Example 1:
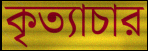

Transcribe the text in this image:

কৃত্যাচার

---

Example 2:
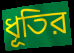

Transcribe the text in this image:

ধূতির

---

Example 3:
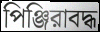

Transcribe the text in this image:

পিঞ্জিরাবদ্ধ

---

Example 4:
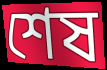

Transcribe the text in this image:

শেষ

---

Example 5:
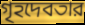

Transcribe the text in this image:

গৃহদেবতার